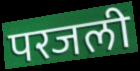
परजली